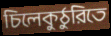
চিলেকুঠুরিতে